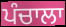
ਪੰਚਾਲਾ